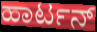
ಹಾರ್ಟನ್